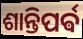
ଶାନ୍ତିପର୍ଵ